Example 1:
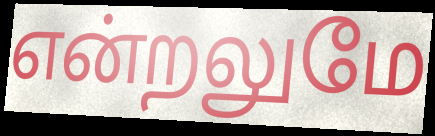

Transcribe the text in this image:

என்றலுமே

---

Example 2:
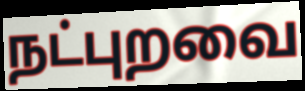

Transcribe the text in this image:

நட்புறவை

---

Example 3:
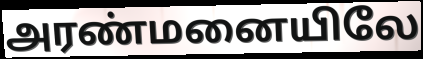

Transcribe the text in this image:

அரண்மனையிலே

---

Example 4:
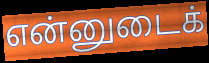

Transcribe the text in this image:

என்னுடைக்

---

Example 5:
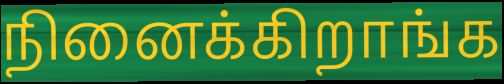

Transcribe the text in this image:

நினைக்கிறாங்க